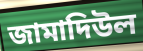
জামাদিউল